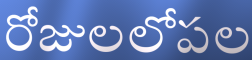
రోజులలోపల